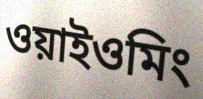
ওয়াইওমিং